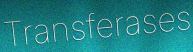
Transferases